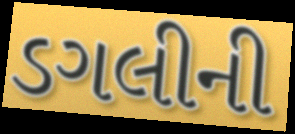
ડગલીની